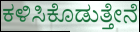
ಕಳಿಸಿಕೊಡುತ್ತೇನೆ